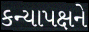
કન્યાપક્ષને